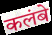
कलंबे